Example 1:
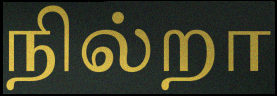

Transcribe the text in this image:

நில்றா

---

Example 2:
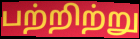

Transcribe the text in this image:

பற்றிற்று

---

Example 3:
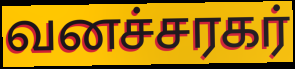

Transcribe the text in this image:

வனச்சரகர்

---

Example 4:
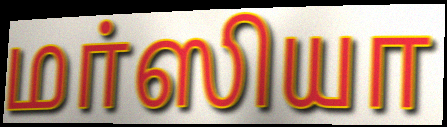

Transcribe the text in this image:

மர்ஸியா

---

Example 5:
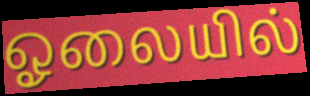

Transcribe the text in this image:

ஓலையில்